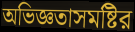
অভিজ্ঞতাসমষ্টির